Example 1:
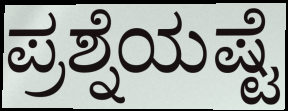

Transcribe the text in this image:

ಪ್ರಶ್ನೆಯಷ್ಟೆ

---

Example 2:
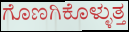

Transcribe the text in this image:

ಗೊಣಗಿಕೊಳ್ಳುತ್ತ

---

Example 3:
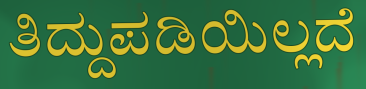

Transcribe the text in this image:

ತಿದ್ದುಪಡಿಯಿಲ್ಲದೆ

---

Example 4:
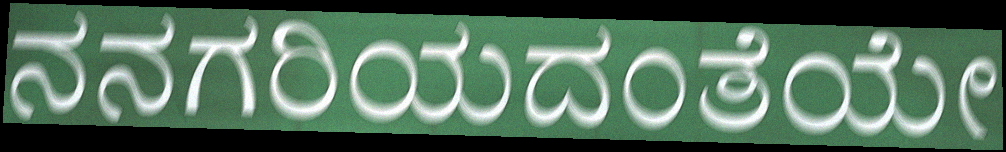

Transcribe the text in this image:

ನನಗರಿಯದಂತೆಯೇ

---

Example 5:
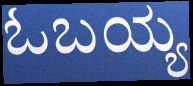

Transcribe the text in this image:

ಓಬಯ್ಯ